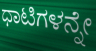
ಧಾಟಿಗಳನ್ನೇ